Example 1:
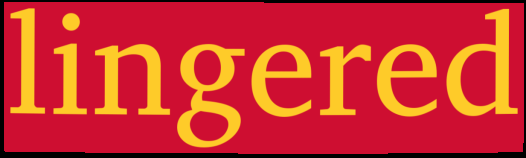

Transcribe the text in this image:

lingered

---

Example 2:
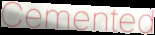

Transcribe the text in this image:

Cemented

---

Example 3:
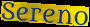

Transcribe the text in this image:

Sereno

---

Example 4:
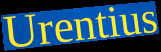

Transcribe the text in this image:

Urentius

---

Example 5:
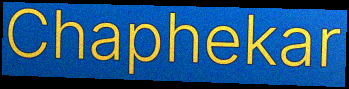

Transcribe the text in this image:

Chaphekar